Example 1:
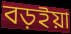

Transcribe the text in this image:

বড়ইয়া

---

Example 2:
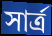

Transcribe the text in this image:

সার্ত্র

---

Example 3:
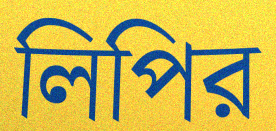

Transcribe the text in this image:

লিপির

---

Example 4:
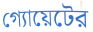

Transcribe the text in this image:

গ্যোয়েটের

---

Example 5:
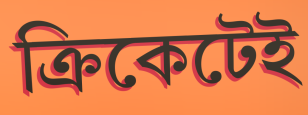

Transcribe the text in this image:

ক্রিকেটেই